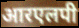
आरएलपी